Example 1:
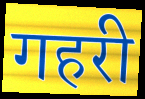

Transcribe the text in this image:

गहरी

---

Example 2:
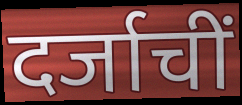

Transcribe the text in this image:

दर्जाचीं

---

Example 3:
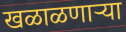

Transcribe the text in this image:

खळाळणाऱ्या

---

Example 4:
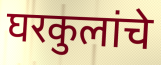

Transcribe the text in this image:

घरकुलांचे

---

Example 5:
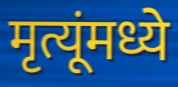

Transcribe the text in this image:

मृत्यूंमध्ये